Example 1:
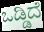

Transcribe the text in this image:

ಒಡ್ಡಿದೆ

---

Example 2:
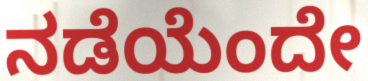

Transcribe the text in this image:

ನಡೆಯೆಂದೇ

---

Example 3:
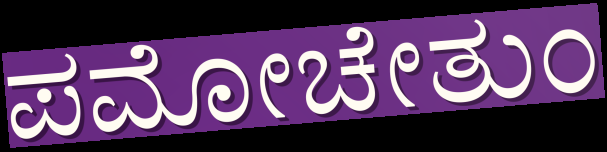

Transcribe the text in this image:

ಪಮೋಚೇತುಂ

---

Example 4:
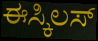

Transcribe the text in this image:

ಈಸ್ಕಿಲಸ್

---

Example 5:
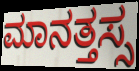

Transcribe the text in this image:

ಮಾನತ್ತಸ್ಸ